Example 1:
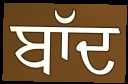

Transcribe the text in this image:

ਬਾੱਦ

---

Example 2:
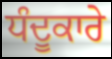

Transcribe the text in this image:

ਧੰਦੂਕਾਰੇ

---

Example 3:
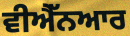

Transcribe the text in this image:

ਵੀਐੱਨਆਰ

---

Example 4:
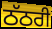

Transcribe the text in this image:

ਠੱਠਰੀ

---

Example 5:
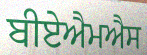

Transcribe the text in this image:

ਬੀਏਐਮਐਸ